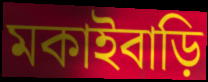
মকাইবাড়ি